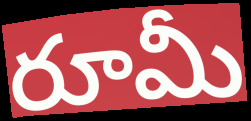
రూమీ